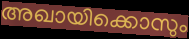
അഖായിക്കൊസും